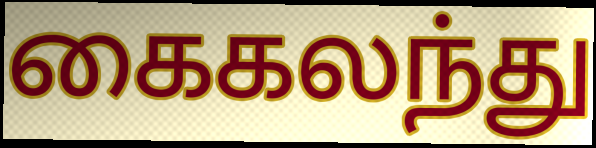
கைகலந்து